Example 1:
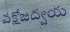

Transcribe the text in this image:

వక్షోజద్వయ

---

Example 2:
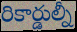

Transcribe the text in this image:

రికార్డుల్నీ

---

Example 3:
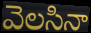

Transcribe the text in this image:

వెలసినా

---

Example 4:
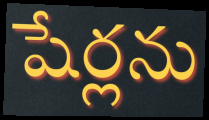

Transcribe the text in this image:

షేర్లను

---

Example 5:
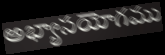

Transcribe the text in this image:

అభ్యాసయోగము